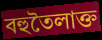
বহুতৈলাক্ত